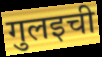
गुलइची